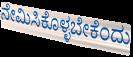
ನೇಮಿಸಿಕೊಳ್ಳಬೇಕೆಂದು